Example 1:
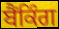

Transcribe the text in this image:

ਬੈਂਕਿੰਗ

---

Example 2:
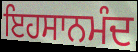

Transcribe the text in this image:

ਇਹਸਾਨਮੰਦ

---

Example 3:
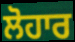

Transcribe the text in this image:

ਲੋਹਾਰ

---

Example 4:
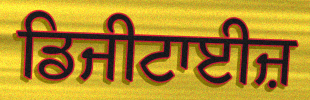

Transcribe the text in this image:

ਡਿਜੀਟਾਈਜ਼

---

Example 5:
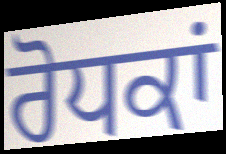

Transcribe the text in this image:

ਰੋਧਕਾਂ